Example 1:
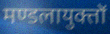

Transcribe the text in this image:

मण्डलायुक्तों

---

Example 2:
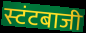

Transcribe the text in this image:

स्टंटबाजी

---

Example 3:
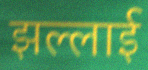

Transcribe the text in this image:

झल्लाई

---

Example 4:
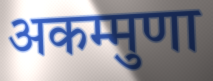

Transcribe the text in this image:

अकम्मुणा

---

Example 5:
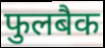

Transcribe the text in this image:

फुलबैक